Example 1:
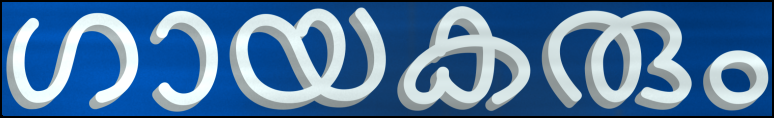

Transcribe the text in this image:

ഗായകരും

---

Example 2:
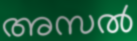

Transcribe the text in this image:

അസൽ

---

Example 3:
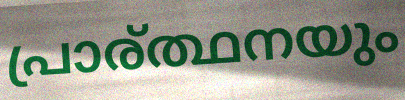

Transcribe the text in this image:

പ്രാര്ത്ഥനയും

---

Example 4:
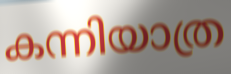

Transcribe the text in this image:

കന്നിയാത്ര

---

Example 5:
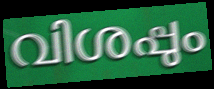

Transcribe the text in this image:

വിശപ്പും